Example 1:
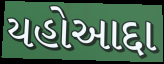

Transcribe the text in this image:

યહોઆદ્દા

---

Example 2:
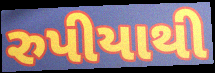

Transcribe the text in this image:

રુપીયાથી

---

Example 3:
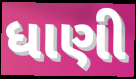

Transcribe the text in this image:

ધાણી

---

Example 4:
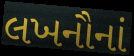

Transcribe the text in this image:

લખનૌનાં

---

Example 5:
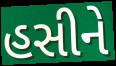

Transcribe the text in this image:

હસીને